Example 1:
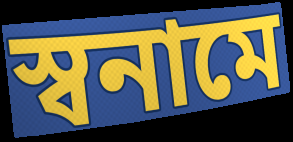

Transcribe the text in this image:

স্বনামে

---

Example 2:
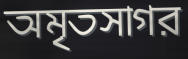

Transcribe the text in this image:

অমৃতসাগর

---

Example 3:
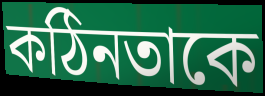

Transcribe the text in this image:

কঠিনতাকে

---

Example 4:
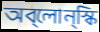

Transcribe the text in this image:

অব্‌লোন্‌স্কি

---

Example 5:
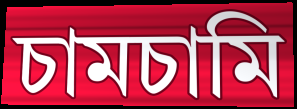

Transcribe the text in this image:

চামচামি